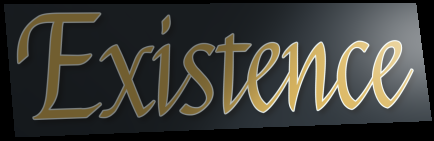
Existence